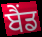
ਬੈਂਡ